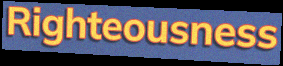
Righteousness